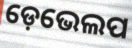
ଡ଼େଭେଲପ